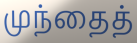
முந்தைத்